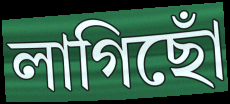
লাগিছোঁ